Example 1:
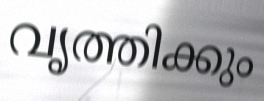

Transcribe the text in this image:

വൃത്തിക്കും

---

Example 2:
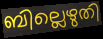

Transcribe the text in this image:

ബില്ലെഴുതി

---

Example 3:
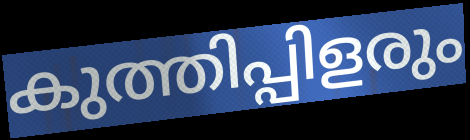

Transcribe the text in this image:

കുത്തിപ്പിളരും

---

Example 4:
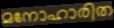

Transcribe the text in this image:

മനോഹാരിത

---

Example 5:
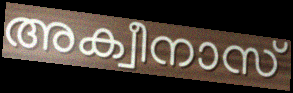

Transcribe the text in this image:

അക്വീനാസ്